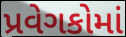
પ્રવેગકોમાં